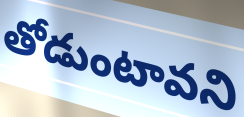
తోడుంటావని